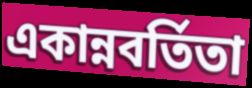
একান্নবর্তিতা